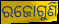
ରଜୋଗୁଣି